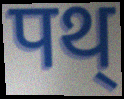
पथ्